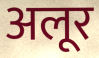
अलूर